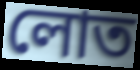
লোত